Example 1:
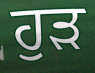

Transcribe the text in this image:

ਹੁੜ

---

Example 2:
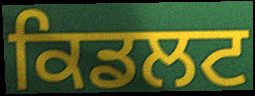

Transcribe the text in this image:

ਕਿਡਲਟ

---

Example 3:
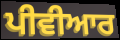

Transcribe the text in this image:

ਪੀਵੀਆਰ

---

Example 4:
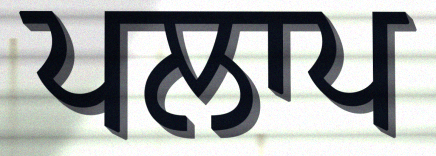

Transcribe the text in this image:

ਪਲਾਪ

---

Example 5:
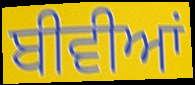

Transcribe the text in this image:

ਬੀਵੀਆਂ